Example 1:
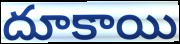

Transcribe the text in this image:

దూకాయి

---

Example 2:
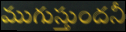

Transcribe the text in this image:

ముగుస్తుందనీ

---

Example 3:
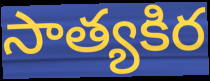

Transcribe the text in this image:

సాత్యకిర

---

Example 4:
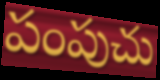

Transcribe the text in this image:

పంపుచు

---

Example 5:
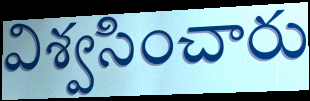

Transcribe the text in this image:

విశ్వసించారు